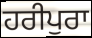
ਹਰੀਪੁਰਾ